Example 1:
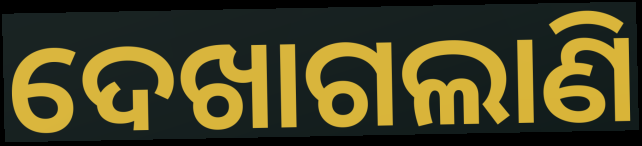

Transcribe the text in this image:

ଦେଖାଗଲାଣି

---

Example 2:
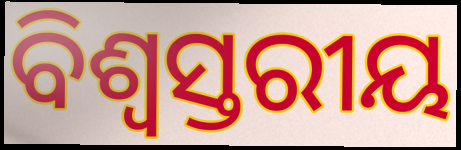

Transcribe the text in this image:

ବିଶ୍ବସ୍ତରୀୟ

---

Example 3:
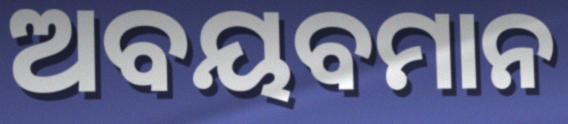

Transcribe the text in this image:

ଅବୟବମାନ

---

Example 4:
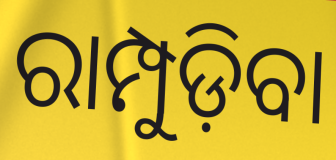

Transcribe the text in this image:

ରାମ୍ପୁଡ଼ିବା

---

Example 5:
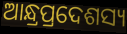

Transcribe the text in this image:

ଆନ୍ଧ୍ରପ୍ରଦେଶସ୍ୟ